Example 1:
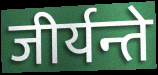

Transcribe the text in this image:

जीर्यन्ते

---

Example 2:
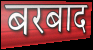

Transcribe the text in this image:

बरबाद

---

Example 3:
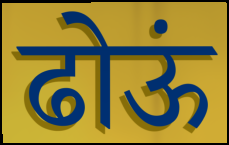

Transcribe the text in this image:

ढोऊं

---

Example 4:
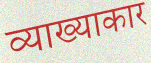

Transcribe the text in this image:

व्याख्याकार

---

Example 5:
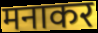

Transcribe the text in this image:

मनाकर